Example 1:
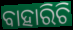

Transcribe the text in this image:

ବାହାରିଚି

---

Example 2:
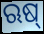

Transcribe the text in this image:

ଋଷ୍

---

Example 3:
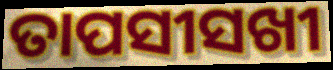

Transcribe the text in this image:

ତାପସୀସଖୀ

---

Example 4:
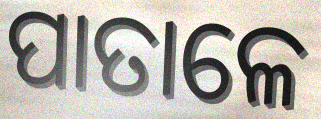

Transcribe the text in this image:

ପାତାଳେ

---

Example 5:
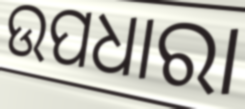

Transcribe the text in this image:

ଉପଧାରା